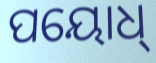
ପୟୋଧ୍